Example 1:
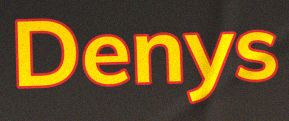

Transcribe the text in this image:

Denys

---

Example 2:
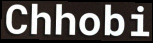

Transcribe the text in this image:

Chhobi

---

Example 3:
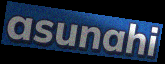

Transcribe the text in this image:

asunahi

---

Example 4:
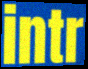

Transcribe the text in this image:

intr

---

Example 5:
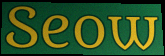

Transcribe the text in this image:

Seow